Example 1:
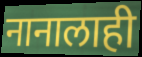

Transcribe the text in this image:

नानालाही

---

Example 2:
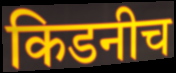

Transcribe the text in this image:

किडनीच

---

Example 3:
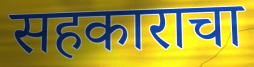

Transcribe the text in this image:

सहकाराचा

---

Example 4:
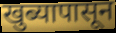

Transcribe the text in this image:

खुब्यापासून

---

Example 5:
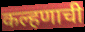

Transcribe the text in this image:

कल्हणाची